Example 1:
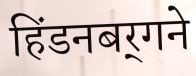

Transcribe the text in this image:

हिंडनबर्गने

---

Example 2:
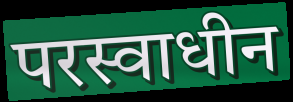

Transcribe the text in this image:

परस्वाधीन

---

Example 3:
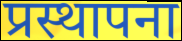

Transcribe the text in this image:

प्रस्थापना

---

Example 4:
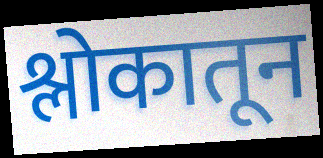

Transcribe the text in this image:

श्लोकातून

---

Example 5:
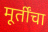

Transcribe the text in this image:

मूर्तींचा